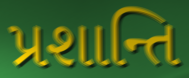
પ્રશાન્તિ